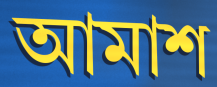
আমাশ